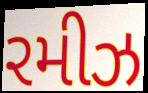
રમીઝ